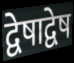
द्वेषाद्वेष